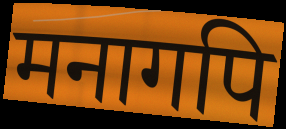
मनागपि